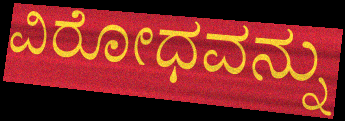
ವಿರೋಧವನ್ನು